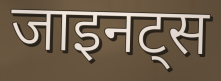
जाइनट्स